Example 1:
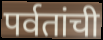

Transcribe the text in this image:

पर्वतांची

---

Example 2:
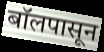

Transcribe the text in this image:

बॉलपासून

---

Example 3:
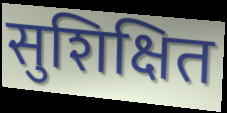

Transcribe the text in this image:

सुशिक्षित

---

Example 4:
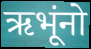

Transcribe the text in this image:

ऋभूंनो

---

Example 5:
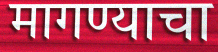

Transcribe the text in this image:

मागण्याचा